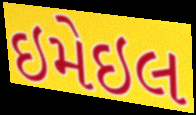
ઇમેઇલ